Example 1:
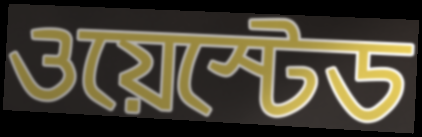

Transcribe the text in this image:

ওয়েস্টেড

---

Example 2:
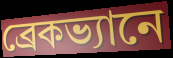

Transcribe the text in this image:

ব্রেকভ্যানে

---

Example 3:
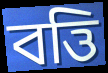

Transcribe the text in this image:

বত্তি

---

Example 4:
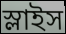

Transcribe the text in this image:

স্লাইস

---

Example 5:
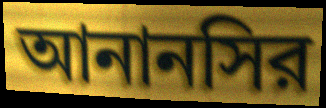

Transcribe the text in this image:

আনানসির